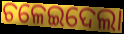
ଚଳେଇଦେଲା